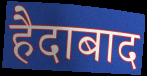
हैदाबाद